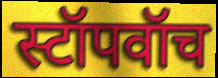
स्टॉपवॉच